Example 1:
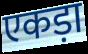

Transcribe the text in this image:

एकड़ा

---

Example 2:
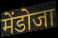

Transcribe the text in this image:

मेंडोजा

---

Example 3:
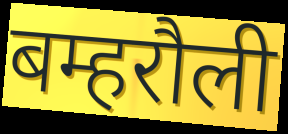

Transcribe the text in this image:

बम्हरौली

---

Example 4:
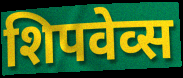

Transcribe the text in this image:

शिपवेव्स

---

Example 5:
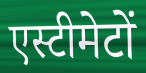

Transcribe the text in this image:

एस्टीमेटों